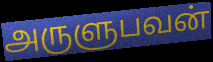
அருளுபவன்